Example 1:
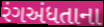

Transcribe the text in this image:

રંગઅંધતાના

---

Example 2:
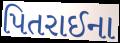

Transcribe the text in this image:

પિતરાઈના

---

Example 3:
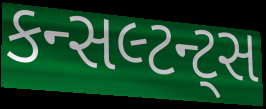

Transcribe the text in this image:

કન્સલ્ટન્ટ્સ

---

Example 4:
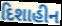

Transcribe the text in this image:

દિશાહીન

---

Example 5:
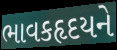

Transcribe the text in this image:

ભાવકહૃદયને